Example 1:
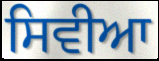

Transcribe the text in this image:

ਸਿਵੀਆ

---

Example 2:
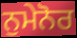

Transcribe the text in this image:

ਨੁਮੇਨੋਰ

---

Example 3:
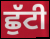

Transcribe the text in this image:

ਛੁੱਟੀ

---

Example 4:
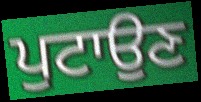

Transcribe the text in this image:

ਪੁਟਾਉਣ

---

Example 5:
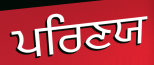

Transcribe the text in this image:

ਪਰਿਣਯ